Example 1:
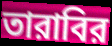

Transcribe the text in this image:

তারাবির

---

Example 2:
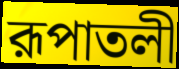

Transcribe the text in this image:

রূপাতলী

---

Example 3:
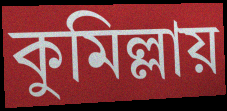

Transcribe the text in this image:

কুমিল্লায়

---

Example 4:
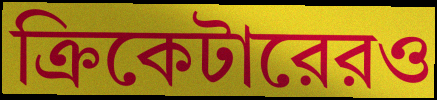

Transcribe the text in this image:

ক্রিকেটারেরও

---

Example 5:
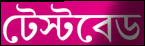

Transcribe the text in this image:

টেস্টবেড